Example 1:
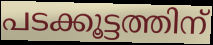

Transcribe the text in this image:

പടക്കൂട്ടത്തിന്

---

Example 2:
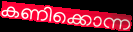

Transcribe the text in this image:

കണിക്കൊന്ന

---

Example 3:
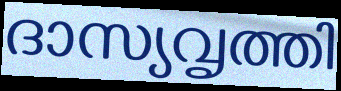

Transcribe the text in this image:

ദാസ്യവൃത്തി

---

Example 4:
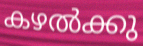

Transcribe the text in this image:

കഴൽക്കു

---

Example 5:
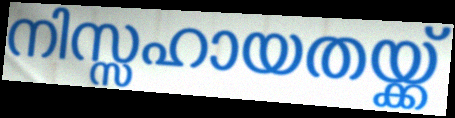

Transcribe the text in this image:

നിസ്സഹായതയ്ക്ക്